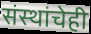
संस्थांचेही